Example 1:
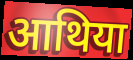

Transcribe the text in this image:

आथिया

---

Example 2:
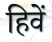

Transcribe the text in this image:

हिवें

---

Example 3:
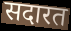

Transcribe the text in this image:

सदारत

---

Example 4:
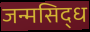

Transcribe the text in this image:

जन्‍मसिद्ध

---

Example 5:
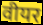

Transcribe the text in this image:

वीयर